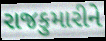
રાજકુમારીને